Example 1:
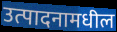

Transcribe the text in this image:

उत्पादनामधील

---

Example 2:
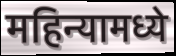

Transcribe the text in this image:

महिन्यामध्ये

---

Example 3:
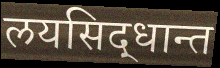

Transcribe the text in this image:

लयसिद्धान्त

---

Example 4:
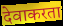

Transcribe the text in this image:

देवाकरता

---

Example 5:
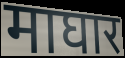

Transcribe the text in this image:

माघार